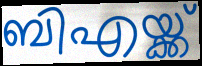
ബിഎയ്ക്ക്